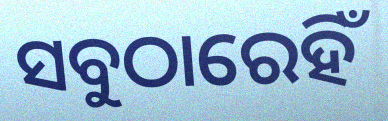
ସବୁଠାରେହିଁ